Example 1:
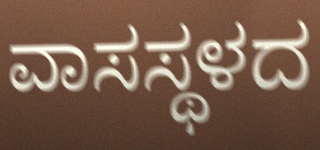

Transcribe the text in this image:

ವಾಸಸ್ಥಳದ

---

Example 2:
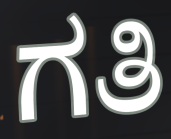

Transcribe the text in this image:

ಗತಿ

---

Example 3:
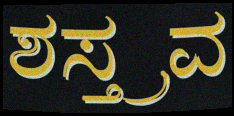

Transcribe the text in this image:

ಶಸ್ತ್ರವ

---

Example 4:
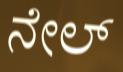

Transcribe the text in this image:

ನೇಲ್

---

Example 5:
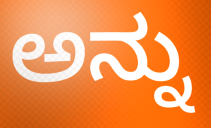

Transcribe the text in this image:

ಅನ್ನು